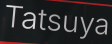
Tatsuya